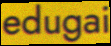
edugai